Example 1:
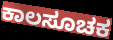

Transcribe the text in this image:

ಕಾಲಸೂಚಕ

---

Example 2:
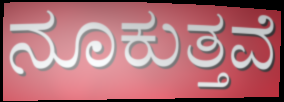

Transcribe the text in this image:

ನೂಕುತ್ತವೆ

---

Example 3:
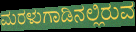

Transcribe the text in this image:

ಮರಳುಗಾಡಿನಲ್ಲಿರುವ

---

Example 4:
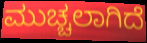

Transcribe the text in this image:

ಮುಚ್ಚಲಾಗಿದೆ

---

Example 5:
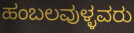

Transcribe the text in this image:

ಹಂಬಲವುಳ್ಳವರು